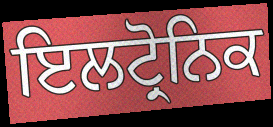
ਇਲਟ੍ਰੋਨਿਕ